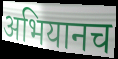
अभियानच